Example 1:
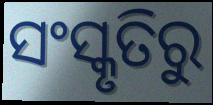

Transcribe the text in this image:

ସଂସ୍କୃତିରୁ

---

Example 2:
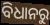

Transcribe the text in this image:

ବିଧାନରୁ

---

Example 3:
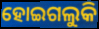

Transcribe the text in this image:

ହୋଇଗଲୁକି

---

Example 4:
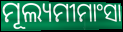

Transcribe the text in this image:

ମୂଲ୍ୟମୀମାଂସା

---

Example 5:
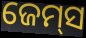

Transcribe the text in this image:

ଜେମ୍‍ସ